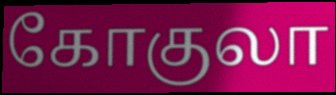
கோகுலா